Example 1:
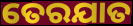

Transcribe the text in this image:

ତେରଯାତ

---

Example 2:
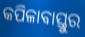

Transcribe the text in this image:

କପିଳାବାସ୍ତୁର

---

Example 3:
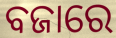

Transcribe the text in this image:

ବଜାରେ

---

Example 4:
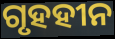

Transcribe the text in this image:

ଗୃହହୀନ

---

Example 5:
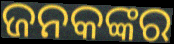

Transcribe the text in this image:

ଜନକଙ୍କର